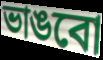
ভাঙবো